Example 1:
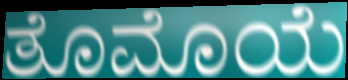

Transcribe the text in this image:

ತೊಮೊಯೆ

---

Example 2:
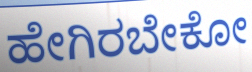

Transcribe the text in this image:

ಹೇಗಿರಬೇಕೋ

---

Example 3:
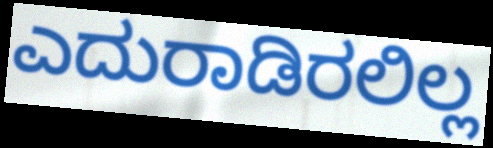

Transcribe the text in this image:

ಎದುರಾಡಿರಲಿಲ್ಲ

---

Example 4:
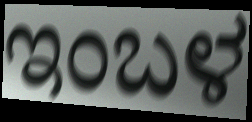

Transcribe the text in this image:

ಇಂಬಳ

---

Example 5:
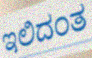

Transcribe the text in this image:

ಇಲಿದಂತ